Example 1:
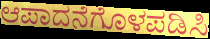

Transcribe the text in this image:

ಆಪಾದನೆಗೊಳಪಡಿಸಿ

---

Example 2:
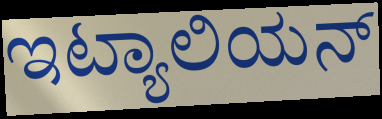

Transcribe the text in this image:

ಇಟ್ಯಾಲಿಯನ್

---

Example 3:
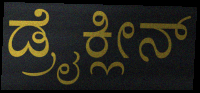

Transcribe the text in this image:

ಡ್ರೈಕ್ಲೀನ್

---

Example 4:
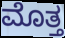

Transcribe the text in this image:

ಮೊತ್ತ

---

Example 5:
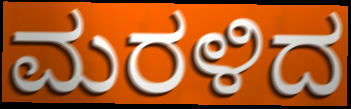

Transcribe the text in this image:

ಮರಳಿದ